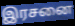
இரசனை